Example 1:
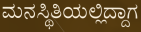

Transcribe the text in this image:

ಮನಸ್ಥಿತಿಯಲ್ಲಿದ್ದಾಗ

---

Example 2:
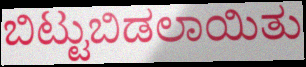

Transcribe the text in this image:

ಬಿಟ್ಟುಬಿಡಲಾಯಿತು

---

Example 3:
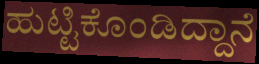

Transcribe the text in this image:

ಹುಟ್ಟಿಕೊಂಡಿದ್ದಾನೆ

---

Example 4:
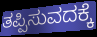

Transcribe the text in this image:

ತಪ್ಪಿಸುವದಕ್ಕೆ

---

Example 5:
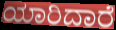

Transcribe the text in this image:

ಯಾರಿದಾರೆ